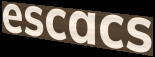
escacs